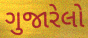
ગુજારેલો